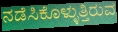
ನಡೆಸಿಕೊಳ್ಳುತ್ತಿರುವ